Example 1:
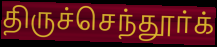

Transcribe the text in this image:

திருச்செந்தூர்க்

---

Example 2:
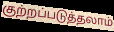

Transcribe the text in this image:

குற்றப்படுத்தலாம்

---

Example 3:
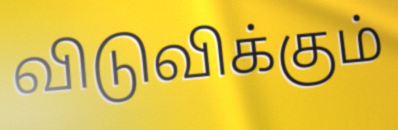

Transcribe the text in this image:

விடுவிக்கும்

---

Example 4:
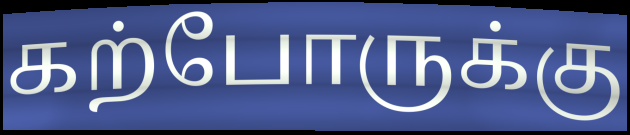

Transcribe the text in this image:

கற்போருக்கு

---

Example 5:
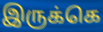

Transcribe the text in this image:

இருக்கெ